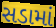
સડામાં